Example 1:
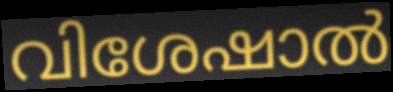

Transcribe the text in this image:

വിശേഷാൽ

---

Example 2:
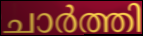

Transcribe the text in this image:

ചാർത്തി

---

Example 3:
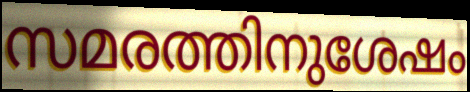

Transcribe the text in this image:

സമരത്തിനുശേഷം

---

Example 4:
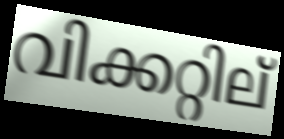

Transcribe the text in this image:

വിക്കറ്റില്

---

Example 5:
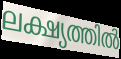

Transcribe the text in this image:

ലക്ഷ്യത്തിൽ